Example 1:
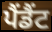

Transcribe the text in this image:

ਪੈਂਡੈਂਟ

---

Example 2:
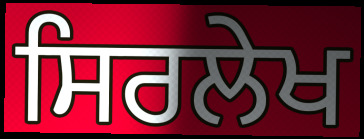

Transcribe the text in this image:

ਸਿਰਲੇਖ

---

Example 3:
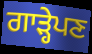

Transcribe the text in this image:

ਗਾੜ੍ਹੇਪਣ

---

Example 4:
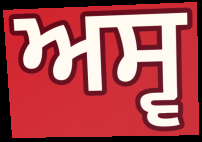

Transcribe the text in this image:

ਅਸ੍ਵ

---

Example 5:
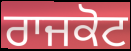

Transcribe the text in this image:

ਰਾਜਕੋਟ